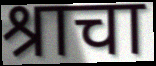
श्राचा